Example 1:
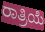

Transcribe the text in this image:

ರಾತ್ರಿಯೆ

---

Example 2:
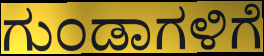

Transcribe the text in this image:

ಗುಂಡಾಗಳಿಗೆ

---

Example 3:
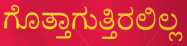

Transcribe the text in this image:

ಗೊತ್ತಾಗುತ್ತಿರಲಿಲ್ಲ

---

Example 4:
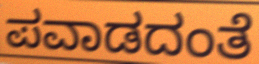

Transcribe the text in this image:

ಪವಾಡದಂತೆ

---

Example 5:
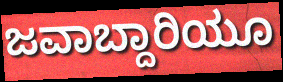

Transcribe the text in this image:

ಜವಾಬ್ದಾರಿಯೂ